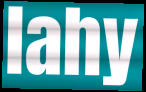
lahy